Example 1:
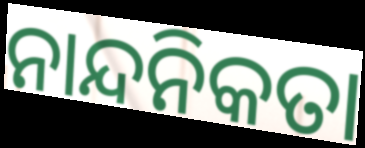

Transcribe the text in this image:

ନାନ୍ଦନିକତା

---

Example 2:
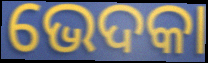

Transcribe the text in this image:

ଭେଦକା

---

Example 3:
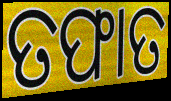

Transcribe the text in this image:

ତଫାତ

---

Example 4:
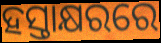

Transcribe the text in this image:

ହସ୍ତାକ୍ଷରରେ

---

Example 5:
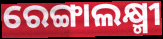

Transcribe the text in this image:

ରେଙ୍ଗାଲକ୍ଷ୍ମୀ